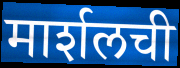
मार्शलची